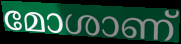
മോശാണ്